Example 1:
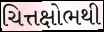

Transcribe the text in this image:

ચિત્તક્ષોભથી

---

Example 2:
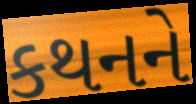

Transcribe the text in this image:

કથનને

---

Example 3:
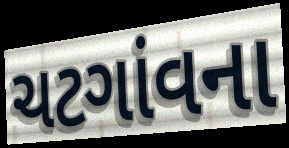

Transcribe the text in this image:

ચટગાંવના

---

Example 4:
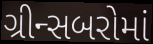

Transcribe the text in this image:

ગ્રીન્સબરોમાં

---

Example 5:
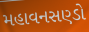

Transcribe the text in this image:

મહાવનસણ્ડો